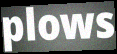
plows